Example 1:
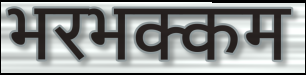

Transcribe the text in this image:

भरभक्कम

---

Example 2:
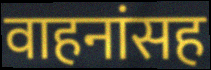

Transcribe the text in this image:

वाहनांसह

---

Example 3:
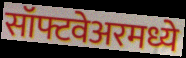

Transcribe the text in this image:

सॉफ्टवेअरमध्ये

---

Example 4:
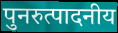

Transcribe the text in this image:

पुनरुत्पादनीय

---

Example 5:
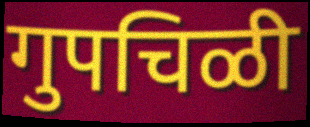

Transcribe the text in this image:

गुपचिळी